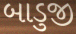
બાડુજી